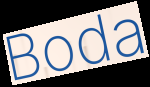
Boda